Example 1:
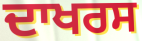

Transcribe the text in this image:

ਦਾਖਰਸ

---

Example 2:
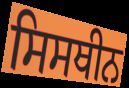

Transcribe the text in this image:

ਸਿਸਥੀਨ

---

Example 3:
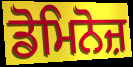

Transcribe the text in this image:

ਡੋਮਿਨੋਜ਼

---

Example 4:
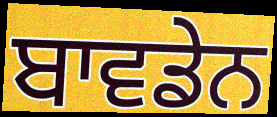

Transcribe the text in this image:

ਬਾਵਡੇਨ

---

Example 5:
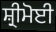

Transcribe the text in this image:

ਸ਼੍ਰੀਮੋਈ